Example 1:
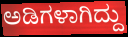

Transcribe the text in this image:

ಅಡಿಗಳಾಗಿದ್ದು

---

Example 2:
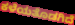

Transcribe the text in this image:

ಕಳೆಯತೊಡಗಿದೆ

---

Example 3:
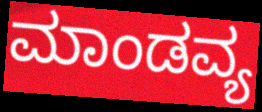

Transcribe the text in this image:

ಮಾಂಡವ್ಯ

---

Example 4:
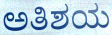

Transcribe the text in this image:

ಅತಿಶಯ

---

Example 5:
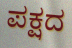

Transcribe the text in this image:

ಪಕ್ಷದ